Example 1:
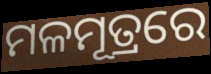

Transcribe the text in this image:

ମଳମୂତ୍ରରେ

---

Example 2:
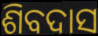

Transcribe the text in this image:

ଶିବଦାସ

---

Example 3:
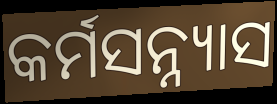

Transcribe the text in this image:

କର୍ମସନ୍ନ୍ୟାସ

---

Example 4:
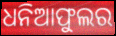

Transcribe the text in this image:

ଧନିଆଫୁଲର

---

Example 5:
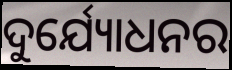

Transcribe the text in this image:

ଦୁର୍ଯ୍ୟୋଧନର